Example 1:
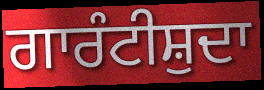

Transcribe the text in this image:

ਗਾਰੰਟੀਸ਼ੁਦਾ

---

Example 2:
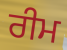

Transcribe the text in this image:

ਰੀਮ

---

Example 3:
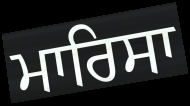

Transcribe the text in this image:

ਮਾਰਿਸਾ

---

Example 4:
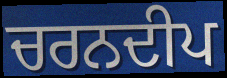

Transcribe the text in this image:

ਚਰਨਦੀਪ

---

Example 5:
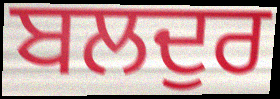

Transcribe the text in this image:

ਬਲਦੁਰ